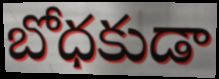
బోధకుడా